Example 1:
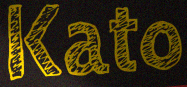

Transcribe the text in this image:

Kato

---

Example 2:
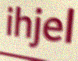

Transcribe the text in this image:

ihjel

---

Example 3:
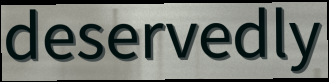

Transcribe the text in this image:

deservedly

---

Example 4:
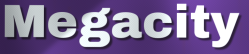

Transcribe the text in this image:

Megacity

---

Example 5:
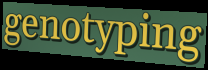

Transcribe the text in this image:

genotyping